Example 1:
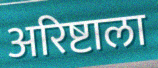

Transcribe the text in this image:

अरिष्टाला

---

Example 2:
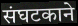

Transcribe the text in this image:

संघटकाने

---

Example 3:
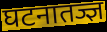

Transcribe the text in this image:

घटनातज्ज्ञ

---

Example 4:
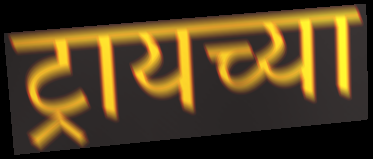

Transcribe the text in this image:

ट्रायच्या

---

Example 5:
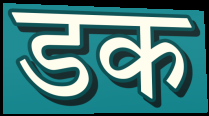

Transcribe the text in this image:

डक